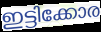
ഇട്ടിക്കോര